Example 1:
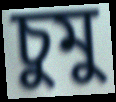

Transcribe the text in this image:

চুমু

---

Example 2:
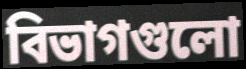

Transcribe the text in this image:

বিভাগগুলো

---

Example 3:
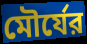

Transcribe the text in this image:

মৌর্যের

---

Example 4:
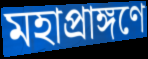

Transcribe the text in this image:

মহাপ্রাঙ্গণে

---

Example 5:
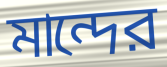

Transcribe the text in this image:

মান্দের